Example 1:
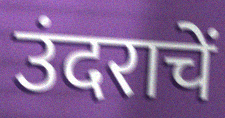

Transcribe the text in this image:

उंदराचें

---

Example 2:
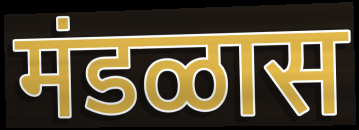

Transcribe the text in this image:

मंडळास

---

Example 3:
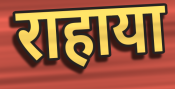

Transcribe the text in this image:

राहाया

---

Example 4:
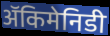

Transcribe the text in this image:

ॲकिमेनिडी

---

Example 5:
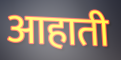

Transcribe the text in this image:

आहाती